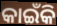
କାଇଁକି